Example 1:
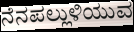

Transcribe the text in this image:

ನೆನಪಲ್ಲುಳಿಯುವ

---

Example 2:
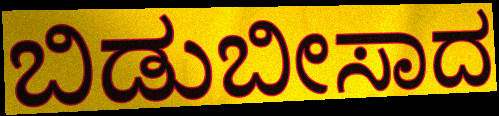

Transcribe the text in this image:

ಬಿಡುಬೀಸಾದ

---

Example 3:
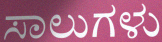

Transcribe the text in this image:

ಸಾಲುಗಳು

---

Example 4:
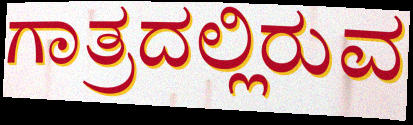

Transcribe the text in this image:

ಗಾತ್ರದಲ್ಲಿರುವ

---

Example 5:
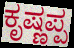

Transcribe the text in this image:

ಕೃಷ್ಣಪ್ಪ